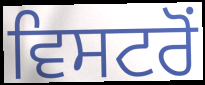
ਵਿਸਟਰੋਂ